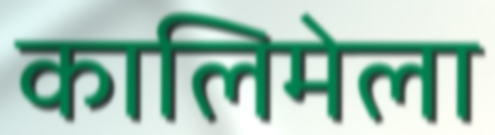
कालिमेला